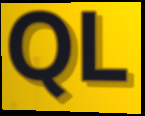
QL